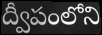
ద్వీపంలోని